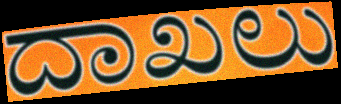
ದಾಖಲು